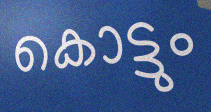
കൊട്ടും